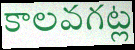
కాలవగట్ల